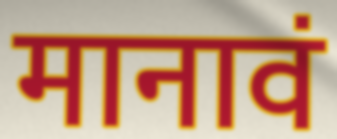
मानावं